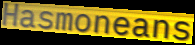
Hasmoneans